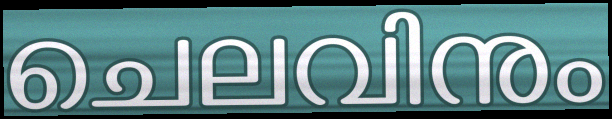
ചെലവിനും